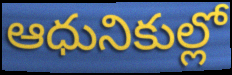
ఆధునికుల్లో